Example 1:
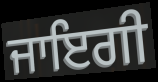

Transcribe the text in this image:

ਜਾਇਗੀ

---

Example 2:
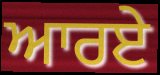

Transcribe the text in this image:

ਆਰਏ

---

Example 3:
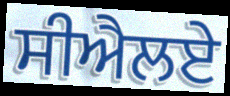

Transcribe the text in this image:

ਸੀਐਲਏ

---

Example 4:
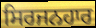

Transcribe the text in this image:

ਸਿਰਜਨਹਾਰ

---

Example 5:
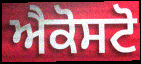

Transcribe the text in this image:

ਐਕੋਸਟੋ